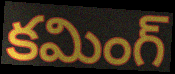
కమింగ్